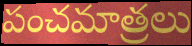
పంచమాత్రలు